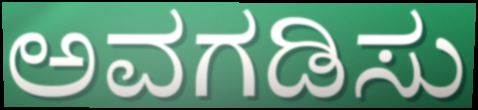
ಅವಗಡಿಸು